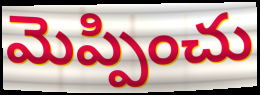
మెప్పించు